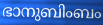
ഭാനുബിംബം